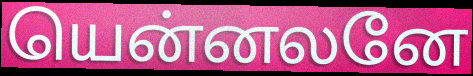
யென்னலனே